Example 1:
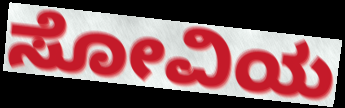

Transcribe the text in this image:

ಸೋವಿಯ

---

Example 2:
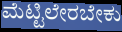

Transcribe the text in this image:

ಮೆಟ್ಟಿಲೇರಬೇಕು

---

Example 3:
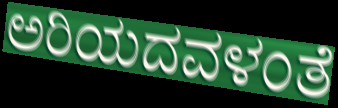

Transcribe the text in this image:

ಅರಿಯದವಳಂತೆ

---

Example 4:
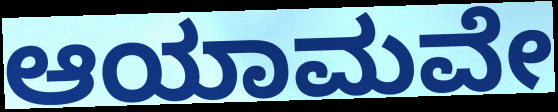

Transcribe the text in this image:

ಆಯಾಮವೇ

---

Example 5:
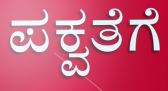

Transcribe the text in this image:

ಪಕ್ವತೆಗೆ